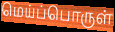
மெய்ப்பொருள்